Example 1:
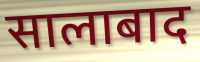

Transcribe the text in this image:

सालाबाद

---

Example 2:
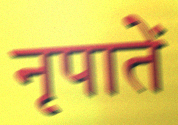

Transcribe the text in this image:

नृपातें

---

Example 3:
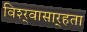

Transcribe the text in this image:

विश्र्वासार्हता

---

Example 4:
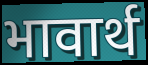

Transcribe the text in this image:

भावार्थ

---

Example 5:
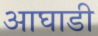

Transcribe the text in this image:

आघाडी